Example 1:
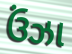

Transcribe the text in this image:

ઉંઝા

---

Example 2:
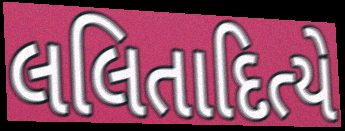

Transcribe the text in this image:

લલિતાદિત્યે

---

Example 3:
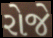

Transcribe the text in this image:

રોજે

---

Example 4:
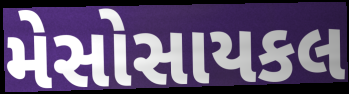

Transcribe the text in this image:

મેસોસાયકલ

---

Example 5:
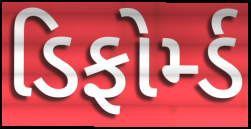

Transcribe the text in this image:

ડિફોર્મ્ડ